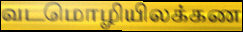
வடமொழியிலக்கண